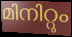
മിനിറ്റും